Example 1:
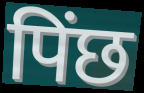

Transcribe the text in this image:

पिंछ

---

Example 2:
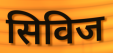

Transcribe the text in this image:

सिविज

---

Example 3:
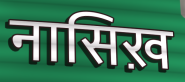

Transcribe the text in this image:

नासिख़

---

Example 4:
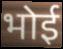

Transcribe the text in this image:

भोई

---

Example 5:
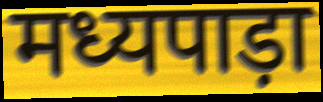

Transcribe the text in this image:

मध्यपाड़ा